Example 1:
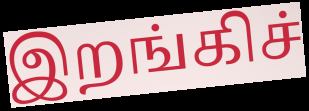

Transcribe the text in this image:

இறங்கிச்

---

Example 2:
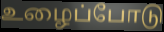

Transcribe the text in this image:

உழைப்போடு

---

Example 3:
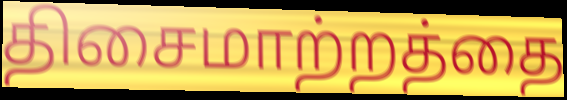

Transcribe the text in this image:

திசைமாற்றத்தை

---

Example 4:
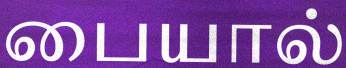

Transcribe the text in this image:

பையால்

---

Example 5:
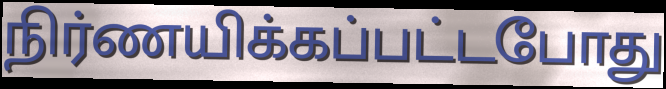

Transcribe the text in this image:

நிர்ணயிக்கப்பட்டபோது